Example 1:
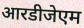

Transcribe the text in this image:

आरडीजेएम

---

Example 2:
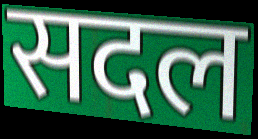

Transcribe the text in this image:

सदल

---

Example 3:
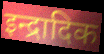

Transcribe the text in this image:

इन्द्रादिक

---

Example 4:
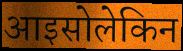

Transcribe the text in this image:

आइसोलेकिन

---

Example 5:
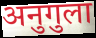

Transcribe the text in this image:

अनुगुला